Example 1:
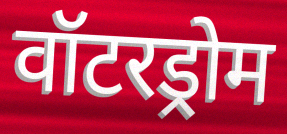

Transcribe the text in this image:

वॉटरड्रोम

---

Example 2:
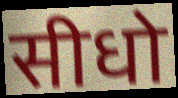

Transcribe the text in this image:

सीधो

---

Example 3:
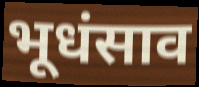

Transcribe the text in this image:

भूधंसाव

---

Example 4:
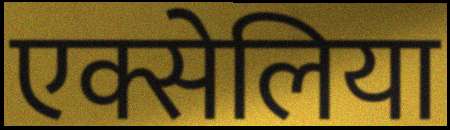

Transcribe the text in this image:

एक्सेलिया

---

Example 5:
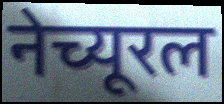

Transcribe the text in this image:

नेच्यूरल